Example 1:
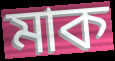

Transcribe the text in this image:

মাক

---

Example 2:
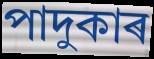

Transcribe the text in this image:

পাদুকাৰ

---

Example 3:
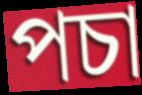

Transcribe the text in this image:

পচা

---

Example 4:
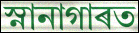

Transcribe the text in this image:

স্নানাগাৰত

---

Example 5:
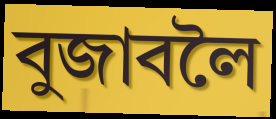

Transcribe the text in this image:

বুজাবলৈ